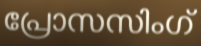
പ്രോസസിംഗ്